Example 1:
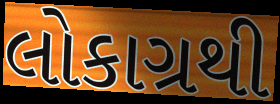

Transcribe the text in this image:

લોકાગ્રથી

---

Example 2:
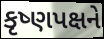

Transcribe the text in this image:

કૃષ્ણપક્ષને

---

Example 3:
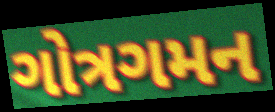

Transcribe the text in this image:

ગોત્રગમન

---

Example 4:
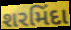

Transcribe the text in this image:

શરમિંદા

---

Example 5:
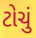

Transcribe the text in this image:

ટોચું